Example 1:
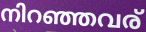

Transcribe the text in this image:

നിറഞ്ഞവര്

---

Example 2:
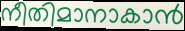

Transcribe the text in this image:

നീതിമാനാകാൻ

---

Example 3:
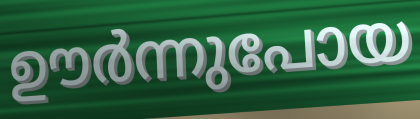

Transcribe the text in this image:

ഊർന്നുപോയ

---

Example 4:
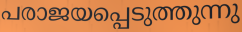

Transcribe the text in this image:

പരാജയപ്പെടുത്തുന്നു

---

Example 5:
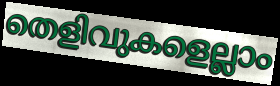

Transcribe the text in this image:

തെളിവുകളെല്ലാം